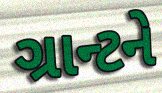
ગ્રાન્ટને